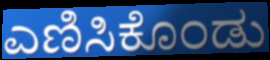
ಎಣಿಸಿಕೊಂಡು